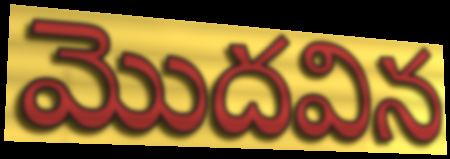
మొదవిన